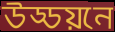
উড্ডয়নে